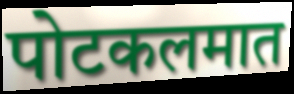
पोटकलमात